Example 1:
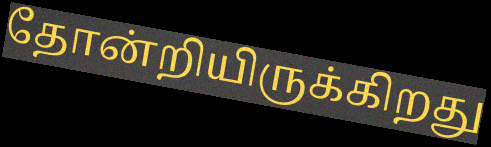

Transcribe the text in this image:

தோன்றியிருக்கிறது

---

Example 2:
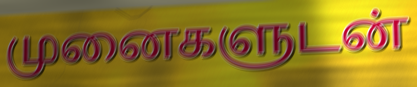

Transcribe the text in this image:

முனைகளுடன்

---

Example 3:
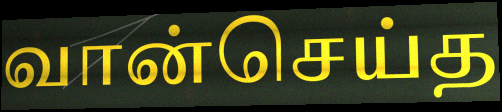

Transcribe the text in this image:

வான்செய்த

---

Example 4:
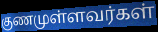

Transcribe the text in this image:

குணமுள்ளவர்கள்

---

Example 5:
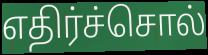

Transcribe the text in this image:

எதிர்ச்சொல்